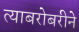
त्याबरोबरीने